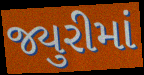
જ્યુરીમાં